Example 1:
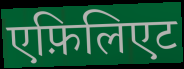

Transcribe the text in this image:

एफ़िलिएट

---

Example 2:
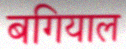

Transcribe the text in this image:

बगियाल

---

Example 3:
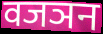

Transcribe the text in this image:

वजञन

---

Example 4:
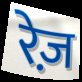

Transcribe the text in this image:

रेज़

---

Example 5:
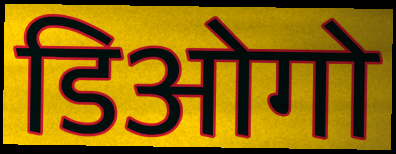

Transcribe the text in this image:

डिओगो